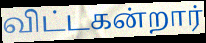
விட்டகன்றார்